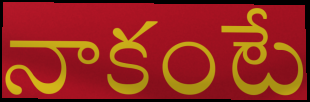
నాకంటే